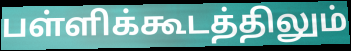
பள்ளிக்கூடத்திலும்